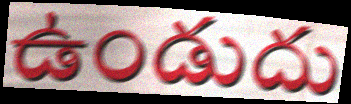
ఉండుదు